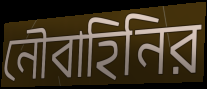
নৌবাহিনির